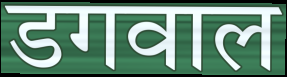
डगवाल